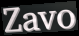
Zavo